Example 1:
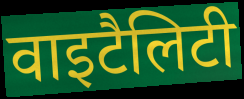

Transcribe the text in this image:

वाइटैलिटी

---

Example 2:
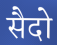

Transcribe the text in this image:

सैदो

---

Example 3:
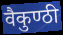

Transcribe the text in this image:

वैकुण्ठी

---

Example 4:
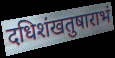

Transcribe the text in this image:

दधिशंखतुषाराभं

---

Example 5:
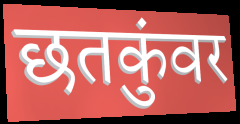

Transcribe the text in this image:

छतकुंवर